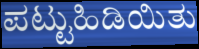
ಪಟ್ಟುಹಿಡಿಯಿತು